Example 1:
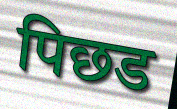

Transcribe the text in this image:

पिछड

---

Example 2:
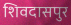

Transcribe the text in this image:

शिवदासपुर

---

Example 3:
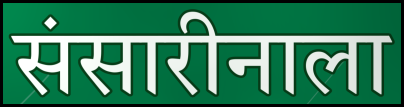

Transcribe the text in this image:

संसारीनाला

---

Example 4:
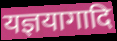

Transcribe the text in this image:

यज्ञयागादि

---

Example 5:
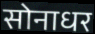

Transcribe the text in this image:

सोनाधर